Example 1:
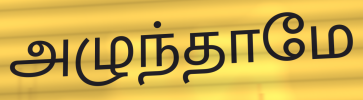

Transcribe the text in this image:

அழுந்தாமே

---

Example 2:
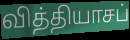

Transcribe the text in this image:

வித்தியாசப்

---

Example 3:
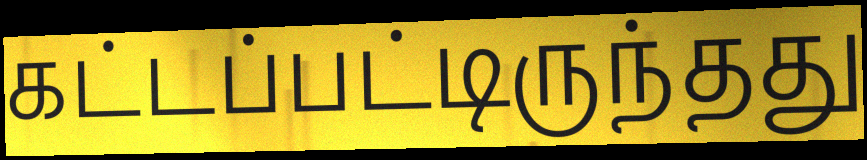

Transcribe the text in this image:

கட்டப்பட்டிருந்தது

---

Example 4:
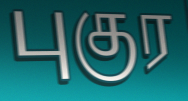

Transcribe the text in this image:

புகுர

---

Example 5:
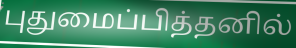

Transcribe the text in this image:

புதுமைப்பித்தனில்